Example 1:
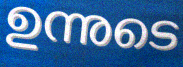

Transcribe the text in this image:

ഉന്നുടെ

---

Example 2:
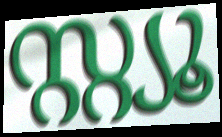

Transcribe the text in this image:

സ്റ്റ്യൂ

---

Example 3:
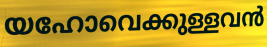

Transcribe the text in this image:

യഹോവെക്കുള്ളവൻ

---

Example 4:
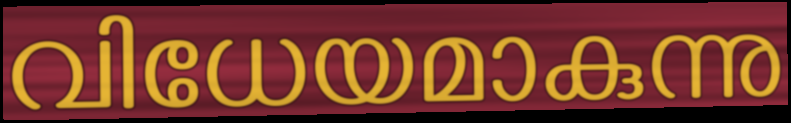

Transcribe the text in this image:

വിധേയമാകുന്നു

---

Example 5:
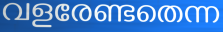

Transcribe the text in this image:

വളരേണ്ടതെന്ന